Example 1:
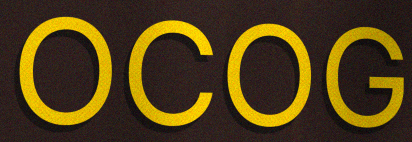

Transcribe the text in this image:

OCOG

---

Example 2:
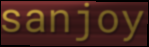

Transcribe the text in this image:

sanjoy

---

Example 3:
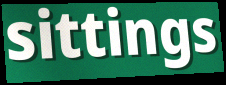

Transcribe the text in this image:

sittings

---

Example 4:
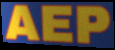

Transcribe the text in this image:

AEP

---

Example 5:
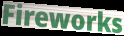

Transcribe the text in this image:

Fireworks